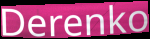
Derenko